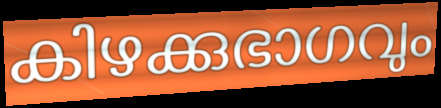
കിഴക്കുഭാഗവും